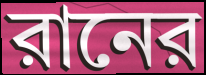
রানের